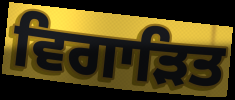
ਵਿਗਾੜਿਤ